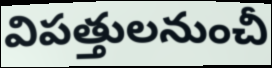
విపత్తులనుంచీ